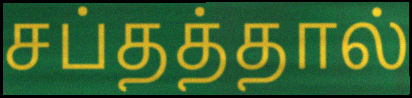
சப்தத்தால்